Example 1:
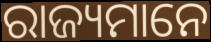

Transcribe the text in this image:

ରାଜ୍ୟମାନେ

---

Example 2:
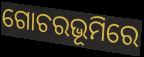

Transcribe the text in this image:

ଗୋଚରଭୂମିରେ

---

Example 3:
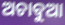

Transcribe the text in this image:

ଅଚାବୁଆ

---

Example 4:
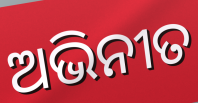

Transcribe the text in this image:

ଅଭିନୀତ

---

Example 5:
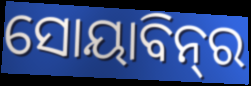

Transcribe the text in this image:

ସୋୟାବିନ୍‌ର